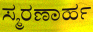
ಸ್ಮರಣಾರ್ಹ